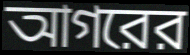
আগরের